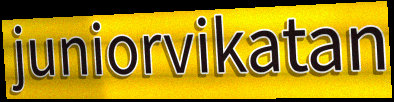
juniorvikatan